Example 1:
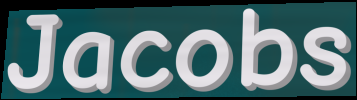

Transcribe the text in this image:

Jacobs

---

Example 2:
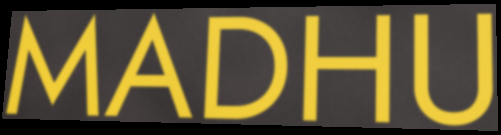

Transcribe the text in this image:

MADHU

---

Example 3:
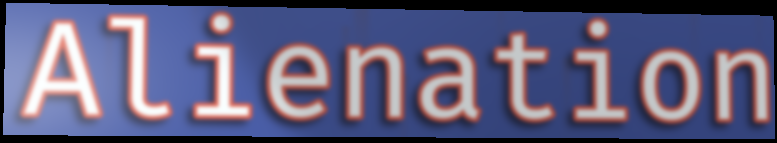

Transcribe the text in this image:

Alienation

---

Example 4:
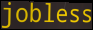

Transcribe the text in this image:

jobless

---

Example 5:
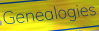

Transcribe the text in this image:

Genealogies